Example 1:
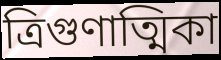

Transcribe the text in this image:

ত্রিগুণাত্মিকা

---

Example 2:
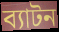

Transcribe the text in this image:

ব্যাটন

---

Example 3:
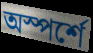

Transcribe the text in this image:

অস্পর্শে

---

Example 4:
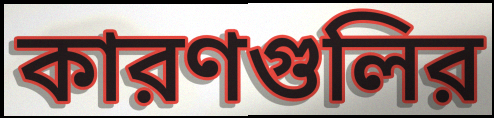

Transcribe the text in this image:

কারণগুলির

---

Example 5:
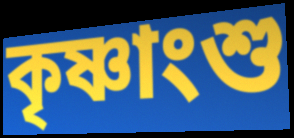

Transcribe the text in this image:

কৃষ্ণাংশু